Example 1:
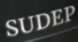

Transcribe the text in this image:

SUDEP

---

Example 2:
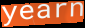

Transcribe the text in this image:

yearn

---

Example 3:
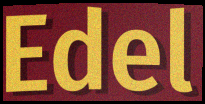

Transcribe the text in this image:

Edel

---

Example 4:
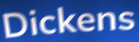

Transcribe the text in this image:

Dickens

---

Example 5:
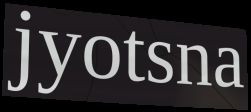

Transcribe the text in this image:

jyotsna